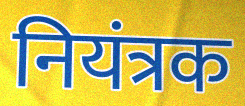
नियंत्रक